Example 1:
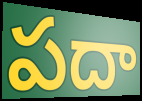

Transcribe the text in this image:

పదా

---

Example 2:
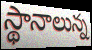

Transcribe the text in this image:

స్థానాలున్న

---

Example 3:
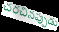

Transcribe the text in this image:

చరచినప్పుడు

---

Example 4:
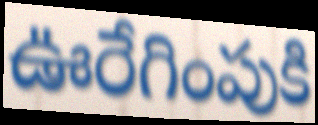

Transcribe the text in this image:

ఊరేగింపుకి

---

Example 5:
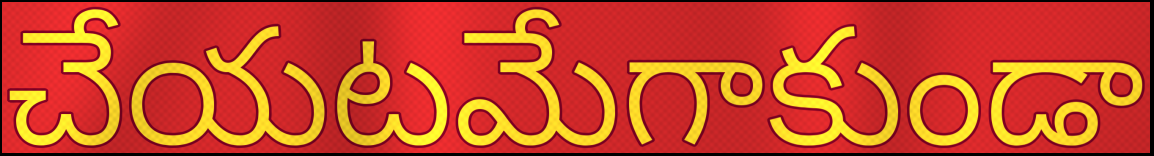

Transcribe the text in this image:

చేయటమేగాకుండా